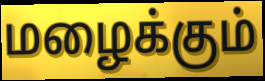
மழைக்கும்